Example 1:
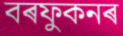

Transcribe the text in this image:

বৰফুকনৰ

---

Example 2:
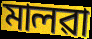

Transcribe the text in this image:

মালৱা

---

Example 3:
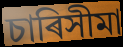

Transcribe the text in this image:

চাৰিসীমা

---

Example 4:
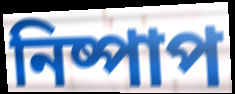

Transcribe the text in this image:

নিষ্পাপ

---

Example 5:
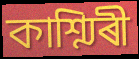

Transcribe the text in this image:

কাশ্মিৰী